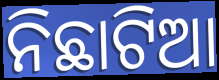
ନିଛାଟିଆ